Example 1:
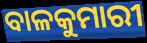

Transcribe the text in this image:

ବାଳକୁମାରୀ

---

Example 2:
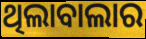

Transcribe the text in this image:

ଥିଲାବାଲାର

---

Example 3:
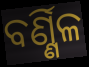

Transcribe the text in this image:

ବର୍ଣ୍ଣିଳ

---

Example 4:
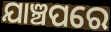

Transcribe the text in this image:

ଯାଞ୍ଚପରେ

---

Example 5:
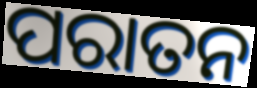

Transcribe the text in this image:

ପରାତନ